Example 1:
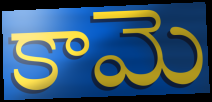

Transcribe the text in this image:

కామె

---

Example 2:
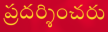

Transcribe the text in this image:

ప్రదర్శించరు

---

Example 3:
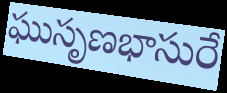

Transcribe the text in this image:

ఘుసృణభాసురే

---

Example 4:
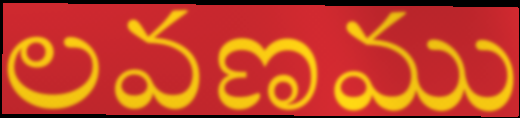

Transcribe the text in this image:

లవణము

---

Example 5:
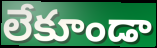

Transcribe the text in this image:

లేకూండా